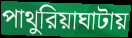
পাথুরিয়াঘাটায়